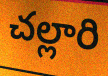
చల్లారి